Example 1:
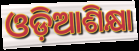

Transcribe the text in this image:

ଓଡ଼ିଆଶିକ୍ଷା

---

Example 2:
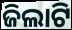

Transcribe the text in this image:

ଜିଲାଟି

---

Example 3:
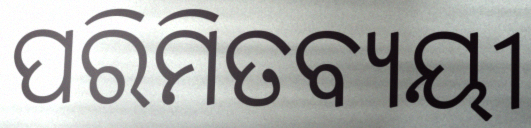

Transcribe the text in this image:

ପରିମିତବ୍ୟୟୀ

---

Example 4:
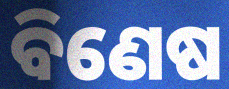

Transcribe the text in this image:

ବିଣେଷ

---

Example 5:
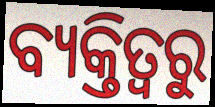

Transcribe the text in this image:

ବ୍ୟକ୍ତିତ୍ୱରୁ